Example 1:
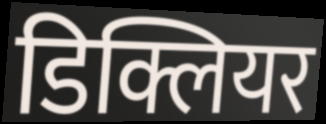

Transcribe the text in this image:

डिक्लियर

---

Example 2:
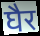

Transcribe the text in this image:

घैर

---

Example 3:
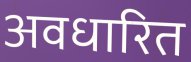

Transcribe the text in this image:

अवधारित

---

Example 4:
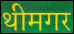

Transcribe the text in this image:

थीमगर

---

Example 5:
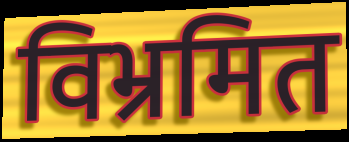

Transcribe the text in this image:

विभ्रमित